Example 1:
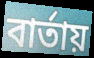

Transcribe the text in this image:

বার্তায়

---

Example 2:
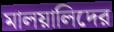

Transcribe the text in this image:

মালয়ালিদের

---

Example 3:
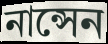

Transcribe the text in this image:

নান্সেন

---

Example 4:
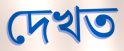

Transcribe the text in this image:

দেখত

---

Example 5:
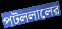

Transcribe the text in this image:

পটললালের